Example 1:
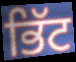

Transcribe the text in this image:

ਭਿੱਟ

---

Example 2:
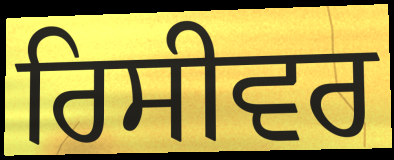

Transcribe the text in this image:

ਰਿਸੀਵਰ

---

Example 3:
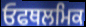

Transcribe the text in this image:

ਓਫਥਲਮਿਕ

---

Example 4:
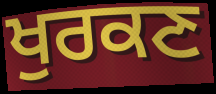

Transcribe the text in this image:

ਖੁਰਕਣ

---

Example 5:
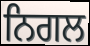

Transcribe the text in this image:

ਨਿਗਲ